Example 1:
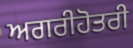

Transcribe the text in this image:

ਅਗਰੀਹੋਤਰੀ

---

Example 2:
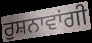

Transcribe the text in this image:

ਰੁਸ਼ਨਾਵਾਂਗੀ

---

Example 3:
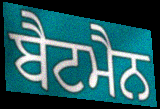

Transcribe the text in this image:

ਬੈਟਮੈਨ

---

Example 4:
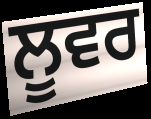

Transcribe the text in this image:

ਲੂਵਰ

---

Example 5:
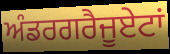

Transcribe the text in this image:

ਅੰਡਰਗਰੈਜੂਏਟਾਂ